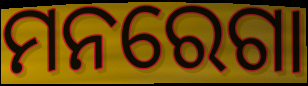
ମନରେଗା